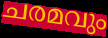
ചരമവും